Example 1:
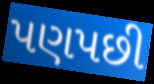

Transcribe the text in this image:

પણપછી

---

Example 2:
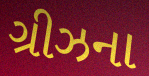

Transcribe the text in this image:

ગ્રીઝના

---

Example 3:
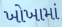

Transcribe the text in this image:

ખોખામાં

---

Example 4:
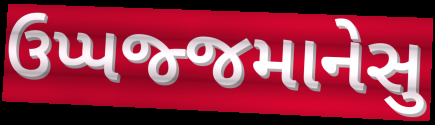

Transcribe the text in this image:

ઉપ્પજ્જમાનેસુ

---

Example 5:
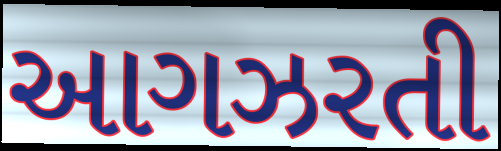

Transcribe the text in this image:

આગઝરતી